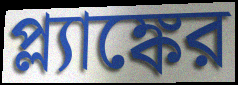
প্ল্যাঙ্কের